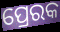
ପ୍ରେରକ